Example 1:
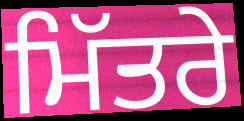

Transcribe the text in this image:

ਮਿੱਤਰੇ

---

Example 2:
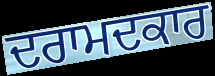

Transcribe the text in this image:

ਦਰਾਮਦਕਾਰ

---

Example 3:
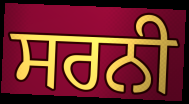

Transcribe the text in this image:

ਸਰਨੀ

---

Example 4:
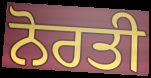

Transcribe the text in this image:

ਨੋਰਤੀ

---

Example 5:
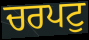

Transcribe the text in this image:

ਚਰਪਟੁ